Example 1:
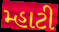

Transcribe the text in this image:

મ્હાટી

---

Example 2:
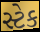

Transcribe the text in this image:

સ્ટેક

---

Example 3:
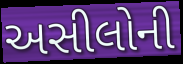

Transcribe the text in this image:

અસીલોની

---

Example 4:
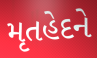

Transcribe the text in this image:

મૃતહેદને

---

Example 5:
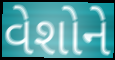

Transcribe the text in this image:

વેશોને